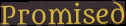
Promised